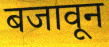
बजावून